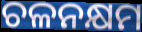
ଚଳନକ୍ଷମ